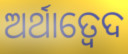
ଅର୍ଥାତ୍ବେଦ